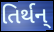
તિર્થન્